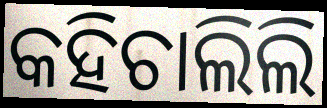
କହିଚାଲିଲି